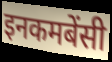
इनकमबेंसी